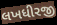
લખધીરજી